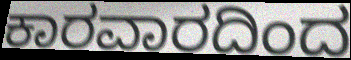
ಕಾರವಾರದಿಂದ